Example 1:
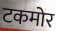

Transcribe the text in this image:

टकमोर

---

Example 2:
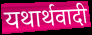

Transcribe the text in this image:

यथार्थवादी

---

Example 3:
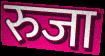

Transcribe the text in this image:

रुजा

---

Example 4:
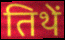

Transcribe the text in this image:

तिथें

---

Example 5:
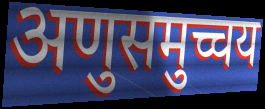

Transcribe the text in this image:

अणुसमुच्चय